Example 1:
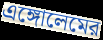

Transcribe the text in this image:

এঙ্গোলেমের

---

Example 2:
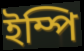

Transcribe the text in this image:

ইম্পি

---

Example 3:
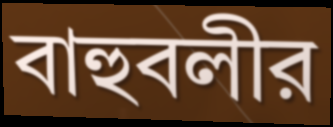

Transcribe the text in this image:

বাহুবলীর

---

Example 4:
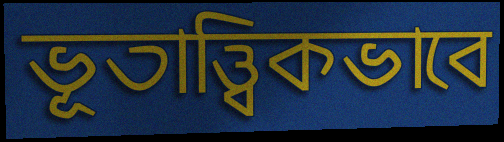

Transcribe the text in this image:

ভূতাত্ত্বিকভাবে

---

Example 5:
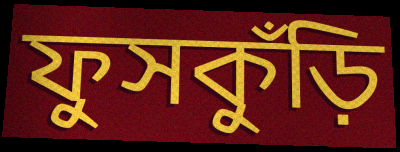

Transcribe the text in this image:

ফুসকুঁড়ি